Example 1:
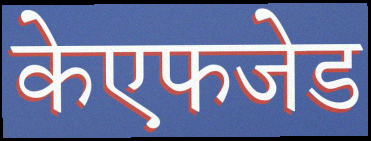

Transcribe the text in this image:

केएफजेड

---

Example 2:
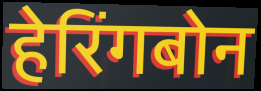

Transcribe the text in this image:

हेरिंगबोन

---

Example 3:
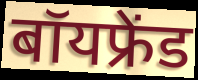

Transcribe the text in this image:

बॉयफ्रेंड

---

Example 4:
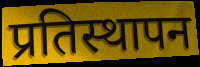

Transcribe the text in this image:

प्रतिस्थापन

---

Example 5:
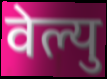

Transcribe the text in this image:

वेल्यु